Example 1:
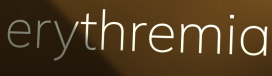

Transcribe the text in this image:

erythremia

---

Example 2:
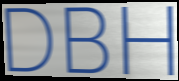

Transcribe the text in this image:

DBH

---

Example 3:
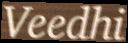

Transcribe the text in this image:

Veedhi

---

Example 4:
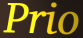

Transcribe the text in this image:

Prio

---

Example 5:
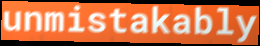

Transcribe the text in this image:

unmistakably